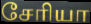
சேரியா